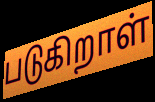
படுகிறாள்